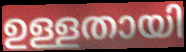
ഉള്ളതായി